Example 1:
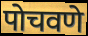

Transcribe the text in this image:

पोचवणे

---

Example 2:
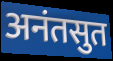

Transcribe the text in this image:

अनंतसुत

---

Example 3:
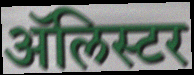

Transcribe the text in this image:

ॲलिस्टर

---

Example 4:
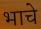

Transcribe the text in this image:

भाचे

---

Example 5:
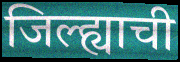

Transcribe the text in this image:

जिल्ह्याची